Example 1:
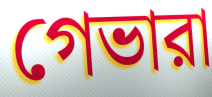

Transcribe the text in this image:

গেভারা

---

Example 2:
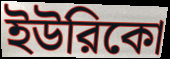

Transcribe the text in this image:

ইউরিকো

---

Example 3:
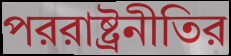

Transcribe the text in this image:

পররাষ্ট্রনীতির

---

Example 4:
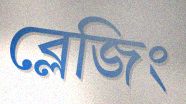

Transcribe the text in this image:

ব্লেজিং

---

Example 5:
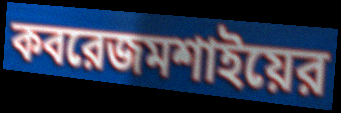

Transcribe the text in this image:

কবরেজমশাইয়ের